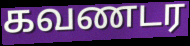
கவணடர